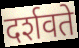
दर्शवते